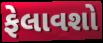
ફેલાવશો